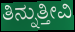
ತಿನ್ನುತ್ತೀವಿ